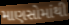
માણસોમાંથી